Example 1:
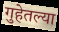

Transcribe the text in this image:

गुहेतल्या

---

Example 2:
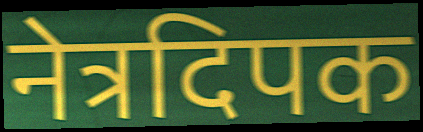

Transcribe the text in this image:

नेत्रदिपक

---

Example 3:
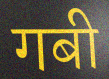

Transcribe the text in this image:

गबी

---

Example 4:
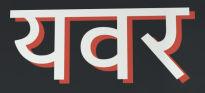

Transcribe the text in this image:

यवर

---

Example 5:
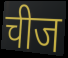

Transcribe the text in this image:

चीज